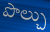
పొల్చు